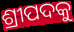
ଶ୍ରୀପଦକୁ